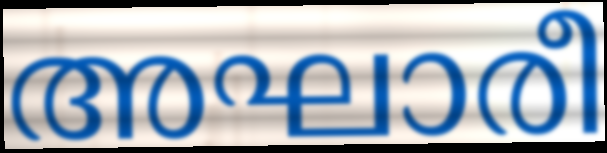
അഘാരീ